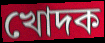
খোদক